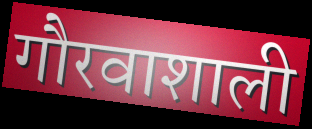
गौरवाशाली